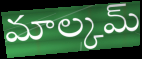
మాల్కమ్